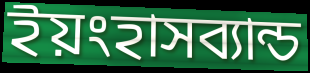
ইয়ংহাসব্যান্ড